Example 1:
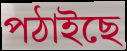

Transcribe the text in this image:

পঠাইছে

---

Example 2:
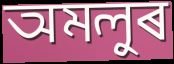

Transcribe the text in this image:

অমলুৰ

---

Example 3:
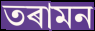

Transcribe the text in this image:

তৰামন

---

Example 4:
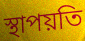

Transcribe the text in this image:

স্থাপয়তি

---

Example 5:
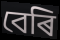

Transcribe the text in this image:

বেৰি